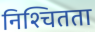
निश्चितता